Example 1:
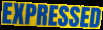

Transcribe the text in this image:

EXPRESSED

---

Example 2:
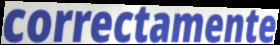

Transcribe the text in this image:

correctamente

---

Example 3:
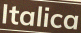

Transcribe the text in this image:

Italica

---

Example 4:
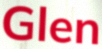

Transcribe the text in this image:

Glen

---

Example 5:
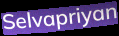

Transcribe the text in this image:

Selvapriyan